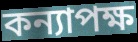
কন্যাপক্ষ